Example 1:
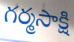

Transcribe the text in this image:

గర్మసాక్షి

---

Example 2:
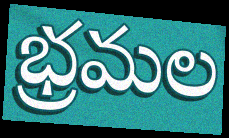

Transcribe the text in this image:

భ్రమల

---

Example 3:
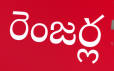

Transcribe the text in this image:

రెంజర్ల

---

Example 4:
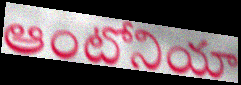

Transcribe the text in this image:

ఆంటోనియా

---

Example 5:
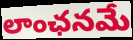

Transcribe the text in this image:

లాంఛనమే